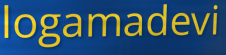
logamadevi